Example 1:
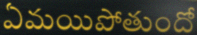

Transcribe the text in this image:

ఏమయిపోతుందో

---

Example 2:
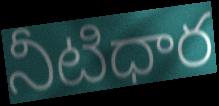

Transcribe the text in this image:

నీటిధార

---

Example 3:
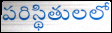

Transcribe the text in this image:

పరిస్థితులలో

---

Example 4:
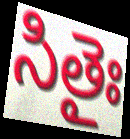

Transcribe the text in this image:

సితైః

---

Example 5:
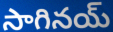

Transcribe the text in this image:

సాగినయ్